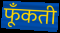
फूँकती